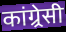
कांग्र्रेसी